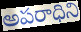
అపరాధిని